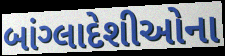
બાંગ્લાદેશીઓના